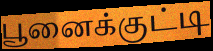
பூனைக்குட்டி